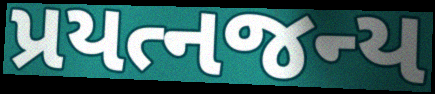
પ્રયત્નજન્ય